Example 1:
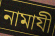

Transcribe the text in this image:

নামাযী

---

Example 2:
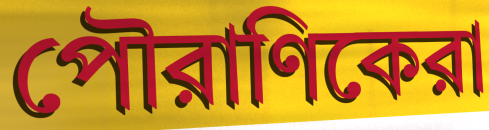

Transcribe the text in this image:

পৌরাণিকেরা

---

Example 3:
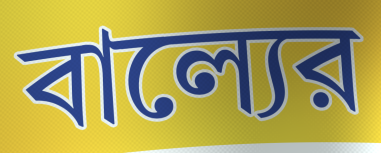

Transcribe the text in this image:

বাল্যের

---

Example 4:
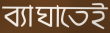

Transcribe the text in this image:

ব্যাঘাতেই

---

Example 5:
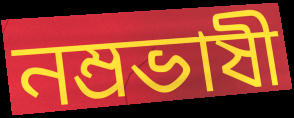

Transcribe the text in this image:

নম্রভাষী